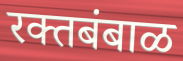
रक्तबंबाळ